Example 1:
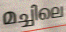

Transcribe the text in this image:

മച്ചിലെ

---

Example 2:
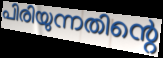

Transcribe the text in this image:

പിരിയുന്നതിന്റെ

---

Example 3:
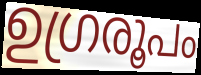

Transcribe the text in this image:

ഉഗ്രരൂപം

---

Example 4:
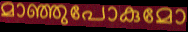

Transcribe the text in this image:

മാഞ്ഞുപോകുമോ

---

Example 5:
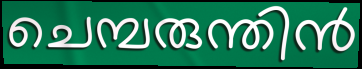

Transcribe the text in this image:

ചെമ്പരുന്തിൻ